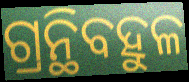
ଗ୍ରନ୍ଥିବହୁଳ